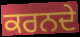
ਕਰਨਦੇ